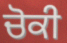
ਚੋਕੀ